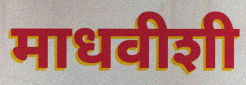
माधवीशी